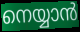
നെയ്യാൻ